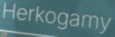
Herkogamy